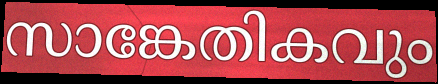
സാങ്കേതികവും